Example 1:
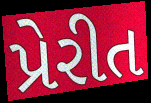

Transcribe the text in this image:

પ્રેરીત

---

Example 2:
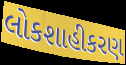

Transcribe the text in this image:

લોકશાહીકરણ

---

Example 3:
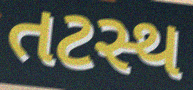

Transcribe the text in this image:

તટસ્થ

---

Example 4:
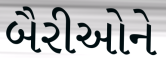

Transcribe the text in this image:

બૈરીઓને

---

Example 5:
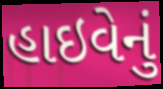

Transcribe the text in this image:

હાઇવેનું